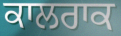
ਕਾਲਰਾਕ